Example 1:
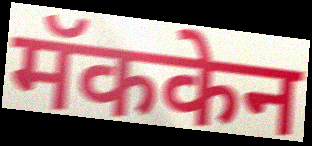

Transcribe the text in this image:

मॅककेन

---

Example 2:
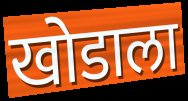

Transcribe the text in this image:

खोडाला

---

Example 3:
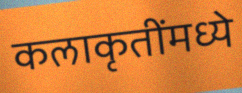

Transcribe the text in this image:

कलाकृतींमध्ये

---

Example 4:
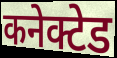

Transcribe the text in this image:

कनेक्टेड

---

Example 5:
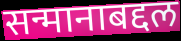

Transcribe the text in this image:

सन्मानाबद्दल